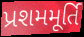
પ્રશમમૂર્તિ